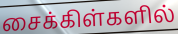
சைக்கிள்களில்